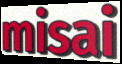
misai